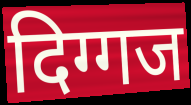
दिग्गज